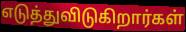
எடுத்துவிடுகிறார்கள்